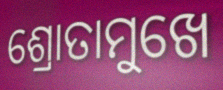
ଶ୍ରୋତାମୁଖେ